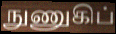
நுணுகிப்